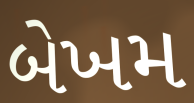
બેખમ